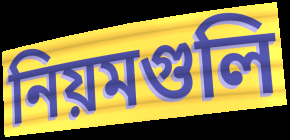
নিয়মগুলি